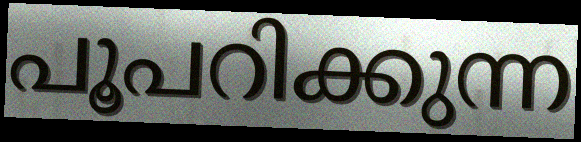
പൂപറിക്കുന്ന